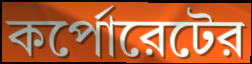
কর্পোরেটের